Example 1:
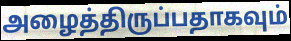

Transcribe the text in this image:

அழைத்திருப்பதாகவும்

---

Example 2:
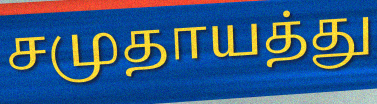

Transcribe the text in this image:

சமுதாயத்து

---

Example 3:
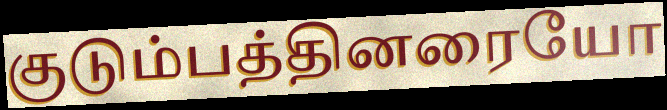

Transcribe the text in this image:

குடும்பத்தினரையோ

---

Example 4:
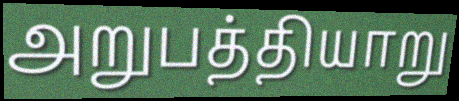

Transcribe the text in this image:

அறுபத்தியாறு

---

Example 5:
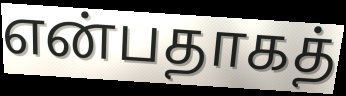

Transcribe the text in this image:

என்பதாகத்